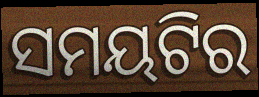
ସମୟଟିର